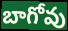
బాగోవు